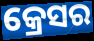
କ୍ରେସର